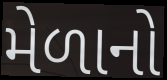
મેળાનો